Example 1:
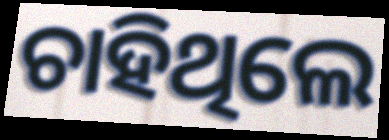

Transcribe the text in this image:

ଚାହିଥିଲେ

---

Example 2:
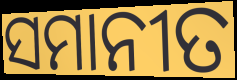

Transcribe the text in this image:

ସମାନୀତ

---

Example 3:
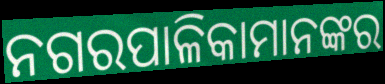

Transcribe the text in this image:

ନଗରପାଳିକାମାନଙ୍କର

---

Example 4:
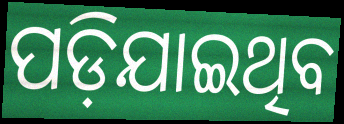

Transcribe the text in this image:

ପଡ଼ିଯାଇଥିବ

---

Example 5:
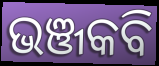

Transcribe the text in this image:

ଭଞ୍ଜକବି